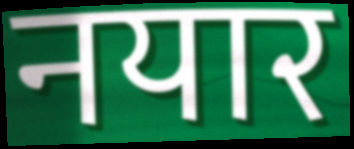
नयार